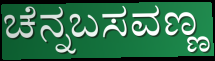
ಚೆನ್ನಬಸವಣ್ಣ